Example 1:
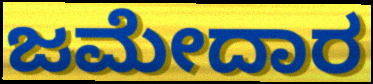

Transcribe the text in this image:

ಜಮೇದಾರ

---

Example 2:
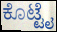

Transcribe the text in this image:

ಕೊಟ್ಟೈ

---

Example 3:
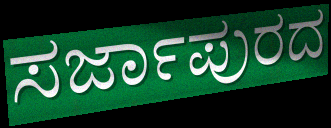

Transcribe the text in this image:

ಸರ್ಜಾಪುರದ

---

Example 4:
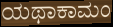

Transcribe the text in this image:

ಯಥಾಕಾಮಂ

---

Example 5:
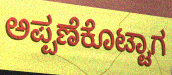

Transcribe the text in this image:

ಅಪ್ಪಣೆಕೊಟ್ಟಾಗ